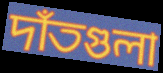
দাঁতগুলা